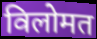
विलोमत